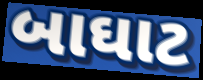
બાઘાટ